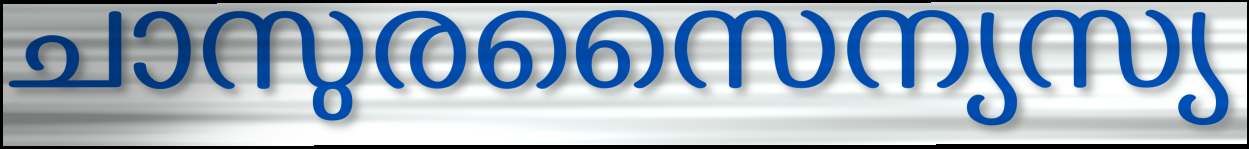
ചാസുരസൈന്യസ്യ